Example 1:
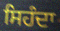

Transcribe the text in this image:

ਸਿਹੰਦਾ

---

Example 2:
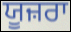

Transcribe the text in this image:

ਯੂਜ਼ਰਾ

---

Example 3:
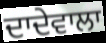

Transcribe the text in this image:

ਦਾਦੇਵਾਲਾ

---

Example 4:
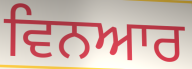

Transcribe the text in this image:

ਵਿਨਆਰ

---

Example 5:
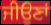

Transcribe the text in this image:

ਜੀਉਣਾਂ